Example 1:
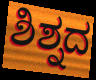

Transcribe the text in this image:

ಶಿಶ್ನದ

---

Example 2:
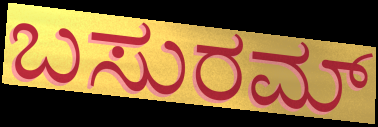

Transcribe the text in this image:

ಬಸುರಮ್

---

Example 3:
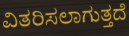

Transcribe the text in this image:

ವಿತರಿಸಲಾಗುತ್ತದೆ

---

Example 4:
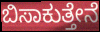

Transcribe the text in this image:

ಬಿಸಾಕುತ್ತೇನೆ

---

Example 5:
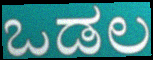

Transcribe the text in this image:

ಒಡಲ